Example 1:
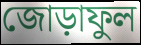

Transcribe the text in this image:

জোড়াফুল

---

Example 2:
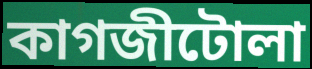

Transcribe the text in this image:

কাগজীটোলা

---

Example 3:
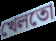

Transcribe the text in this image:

খেলতো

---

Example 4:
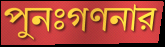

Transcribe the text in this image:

পুনঃগণনার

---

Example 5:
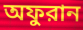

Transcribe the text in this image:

অফুরান